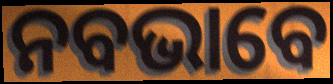
ନବଭାବେ